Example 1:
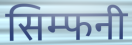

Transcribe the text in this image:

सिम्फनी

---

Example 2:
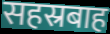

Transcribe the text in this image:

सहस्रबाह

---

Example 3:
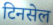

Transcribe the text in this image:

टिनसेल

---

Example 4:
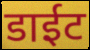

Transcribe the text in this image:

डाईट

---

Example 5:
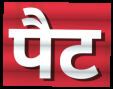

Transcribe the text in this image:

पैट